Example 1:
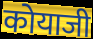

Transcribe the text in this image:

कोयाजी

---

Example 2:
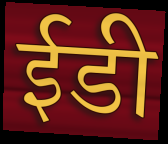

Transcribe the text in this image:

ईडी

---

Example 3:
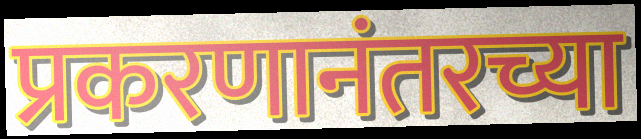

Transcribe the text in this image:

प्रकरणानंतरच्या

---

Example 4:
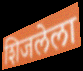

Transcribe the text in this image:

शिजलेला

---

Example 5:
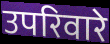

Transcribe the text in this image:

उपरिवारे